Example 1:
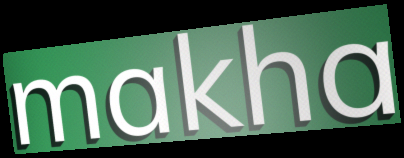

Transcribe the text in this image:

makha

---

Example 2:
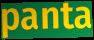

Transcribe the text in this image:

panta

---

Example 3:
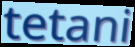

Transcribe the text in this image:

tetani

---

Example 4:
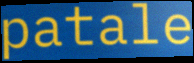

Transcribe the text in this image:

patale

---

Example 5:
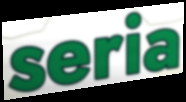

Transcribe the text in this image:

seria